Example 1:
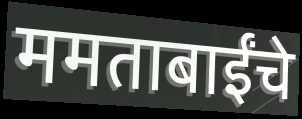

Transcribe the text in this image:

ममताबाईंचे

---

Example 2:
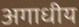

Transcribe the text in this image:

अगाधीय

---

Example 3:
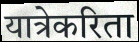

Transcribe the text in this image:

यात्रेकरिता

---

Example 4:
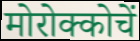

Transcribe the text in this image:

मोरोक्कोचें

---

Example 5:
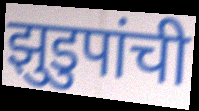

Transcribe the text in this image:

झुडुपांची